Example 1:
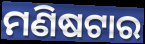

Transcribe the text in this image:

ମଣିଷଟାର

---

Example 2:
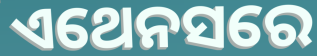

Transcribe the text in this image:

ଏଥେନସରେ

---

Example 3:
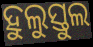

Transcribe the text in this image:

ହୁଲୁସ୍ତୁଲ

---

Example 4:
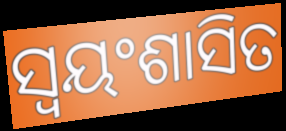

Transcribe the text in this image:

ସ୍ବୟଂଶାସିତ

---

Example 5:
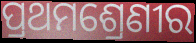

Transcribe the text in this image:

ପ୍ରଥମଶ୍ରେଣୀର